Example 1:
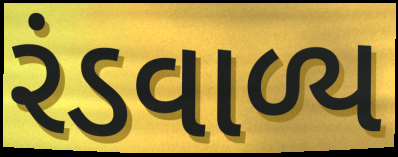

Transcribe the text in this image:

રંડવાળ્ય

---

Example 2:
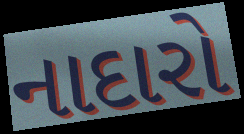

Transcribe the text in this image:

નાદારો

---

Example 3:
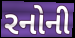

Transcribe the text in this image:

રનોની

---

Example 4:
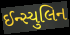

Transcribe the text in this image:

ઈન્સ્યુલિન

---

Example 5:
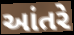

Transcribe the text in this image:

આંતરે